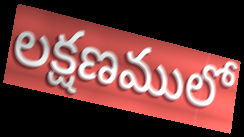
లక్షణములో